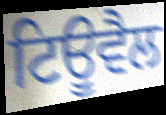
ਟਿਊਵੈਲ